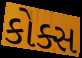
કોક્સ